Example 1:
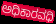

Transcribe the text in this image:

ಅಧಿಕಾರವಧಿ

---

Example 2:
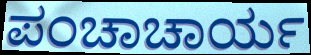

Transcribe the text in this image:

ಪಂಚಾಚಾರ್ಯ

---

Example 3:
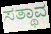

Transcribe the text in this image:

ಸತ್ಥಾವ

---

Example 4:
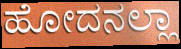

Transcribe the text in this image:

ಹೋದನಲ್ಲಾ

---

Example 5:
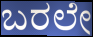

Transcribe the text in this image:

ಬರಲೇ